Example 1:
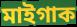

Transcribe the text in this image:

মাইগাক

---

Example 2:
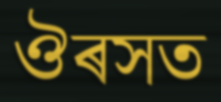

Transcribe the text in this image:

ঔৰসত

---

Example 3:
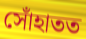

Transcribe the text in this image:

সোঁহাতত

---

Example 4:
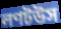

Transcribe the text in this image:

লণটউস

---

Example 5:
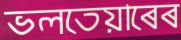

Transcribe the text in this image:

ভলতেয়াৰেৰ